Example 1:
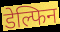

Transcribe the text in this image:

डेल्फिन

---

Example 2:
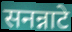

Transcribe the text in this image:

सनन्नाटे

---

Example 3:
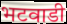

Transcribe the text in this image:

भटवाडी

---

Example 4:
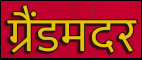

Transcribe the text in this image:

ग्रैंडमदर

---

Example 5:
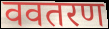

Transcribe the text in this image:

ववतरण